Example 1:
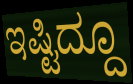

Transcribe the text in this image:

ಇಷ್ಟಿದ್ದೂ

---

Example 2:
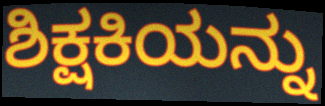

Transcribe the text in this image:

ಶಿಕ್ಷಕಿಯನ್ನು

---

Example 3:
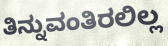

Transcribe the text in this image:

ತಿನ್ನುವಂತಿರಲಿಲ್ಲ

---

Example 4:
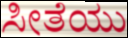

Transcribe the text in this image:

ಸೀತೆಯು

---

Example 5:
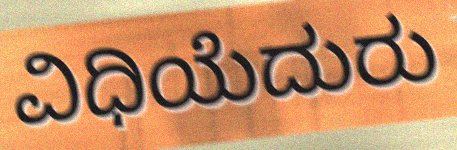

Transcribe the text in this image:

ವಿಧಿಯೆದುರು